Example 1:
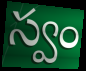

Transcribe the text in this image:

స్వం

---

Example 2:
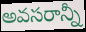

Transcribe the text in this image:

అవసరాన్నీ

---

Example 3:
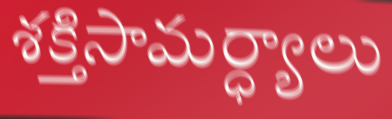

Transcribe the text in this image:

శక్తిసామర్ధ్యాలు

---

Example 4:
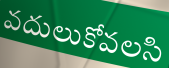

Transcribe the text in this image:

వదులుకోవలసి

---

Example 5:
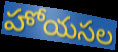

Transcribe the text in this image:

హోయసల